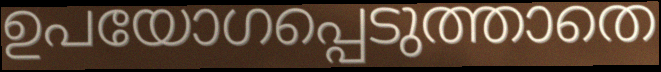
ഉപയോഗപ്പെടുത്താതെ